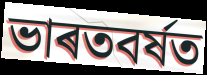
ভাৰতবৰ্ষত